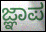
ಜ್ಞಾಪ